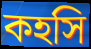
কহসি